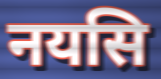
नयसि